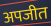
अपजीत